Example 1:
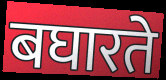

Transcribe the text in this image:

बघारते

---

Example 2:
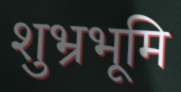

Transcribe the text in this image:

शुभ्रभूमि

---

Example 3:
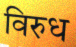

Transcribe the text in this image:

विरुध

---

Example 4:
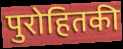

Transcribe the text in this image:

पुरोहितकी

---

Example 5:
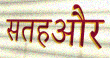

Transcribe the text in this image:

सतहऔर